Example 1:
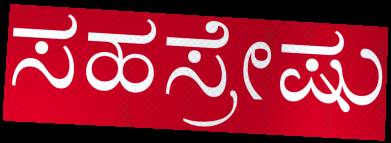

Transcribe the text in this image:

ಸಹಸ್ರೇಷು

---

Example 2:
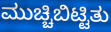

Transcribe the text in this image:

ಮುಚ್ಚಿಬಿಟ್ಟಿತು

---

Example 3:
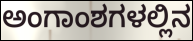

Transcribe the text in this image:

ಅಂಗಾಂಶಗಳಲ್ಲಿನ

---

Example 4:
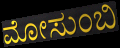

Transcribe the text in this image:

ಮೋಸುಂಬಿ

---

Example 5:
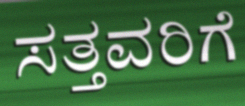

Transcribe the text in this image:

ಸತ್ತವರಿಗೆ